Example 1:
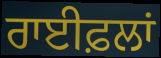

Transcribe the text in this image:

ਰਾਈਫ਼ਲਾਂ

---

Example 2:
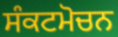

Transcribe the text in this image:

ਸੰਕਟਮੋਚਨ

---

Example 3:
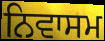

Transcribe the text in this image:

ਨਿਵਾਸਮ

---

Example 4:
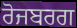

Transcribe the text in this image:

ਰੋਜਬਰਗ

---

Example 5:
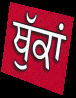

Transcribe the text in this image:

ਥੁੱਕਾਂ